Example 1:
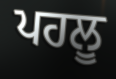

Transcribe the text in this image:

ਪਹਲੂ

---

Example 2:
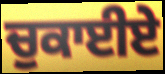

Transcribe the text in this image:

ਚੁਕਾਈਏ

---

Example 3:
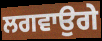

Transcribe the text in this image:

ਲਗਵਾਉਗੇ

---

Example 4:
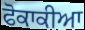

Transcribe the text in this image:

ਫੋਕਾਕੀਆ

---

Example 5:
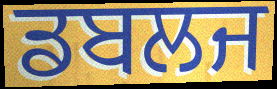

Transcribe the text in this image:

ਡਬਲਜ